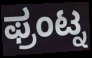
ಫ್ರಂಟ್ನ